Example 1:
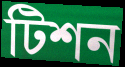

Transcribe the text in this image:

টিশন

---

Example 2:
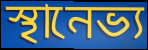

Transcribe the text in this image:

স্থানেভ্য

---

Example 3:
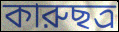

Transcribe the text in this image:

কারুছত্র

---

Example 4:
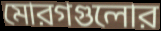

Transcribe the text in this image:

মোরগগুলোর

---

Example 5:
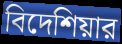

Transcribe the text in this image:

বিদেশিয়ার